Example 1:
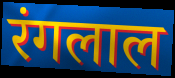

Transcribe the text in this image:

रंगलाल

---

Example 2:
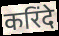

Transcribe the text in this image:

करिंदे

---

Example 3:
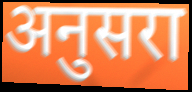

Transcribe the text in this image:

अनुसरा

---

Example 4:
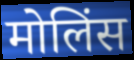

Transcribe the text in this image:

मोलिंस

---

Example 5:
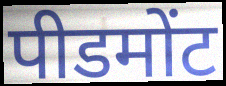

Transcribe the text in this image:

पीडमोंट